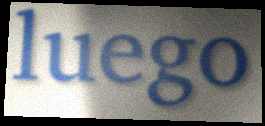
luego